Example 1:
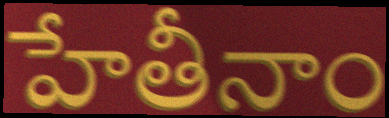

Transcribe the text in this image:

హేతీనాం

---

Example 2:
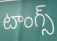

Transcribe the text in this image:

టాంగ్స్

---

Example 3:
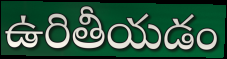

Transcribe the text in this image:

ఉరితీయడం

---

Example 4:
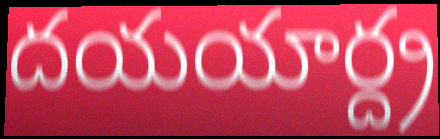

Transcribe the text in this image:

దయయార్ద్ర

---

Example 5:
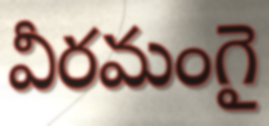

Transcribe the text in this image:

వీరమంగై